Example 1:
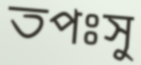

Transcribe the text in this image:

তপঃসু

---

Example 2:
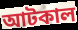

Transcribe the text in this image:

আটকাল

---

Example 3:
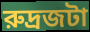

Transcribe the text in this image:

রুদ্রজটা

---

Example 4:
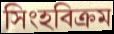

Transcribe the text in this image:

সিংহবিক্রম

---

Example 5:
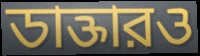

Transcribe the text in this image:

ডাক্তারও